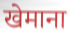
खेमाना